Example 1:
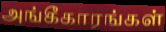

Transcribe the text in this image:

அங்கீகாரங்கள்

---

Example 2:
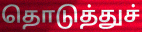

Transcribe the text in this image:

தொடுத்துச்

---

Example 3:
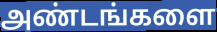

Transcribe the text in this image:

அண்டங்களை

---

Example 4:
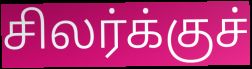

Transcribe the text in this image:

சிலர்க்குச்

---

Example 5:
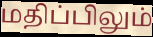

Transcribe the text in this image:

மதிப்பிலும்